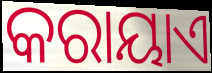
କରାୟାଏ